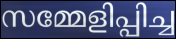
സമ്മേളിപ്പിച്ച